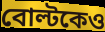
বোল্টকেও